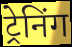
ट्रेनिंग